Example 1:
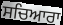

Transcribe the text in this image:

ਸਚਿਆਰਾ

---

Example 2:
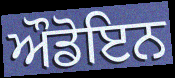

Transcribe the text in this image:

ਔਡੋਇਨ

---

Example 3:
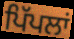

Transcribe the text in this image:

ਪਿੱਪਲਾਂ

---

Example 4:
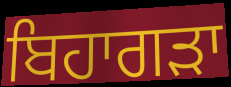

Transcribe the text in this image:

ਬਿਹਾਗੜਾ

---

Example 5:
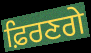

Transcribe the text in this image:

ਫ਼ਿਰਣਗੇ